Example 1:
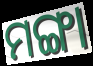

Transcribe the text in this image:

ମଙ୍ଗା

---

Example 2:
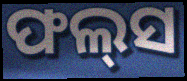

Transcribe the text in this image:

ଫଲ୍‍ସ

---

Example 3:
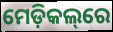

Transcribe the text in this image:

ମେଡ଼ିକଲ୍‌ରେ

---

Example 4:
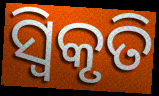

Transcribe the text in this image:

ସ୍ୱିକୃତି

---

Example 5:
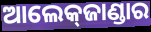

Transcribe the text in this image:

ଆଲେକ୍‌ଜାଣ୍ଡାର